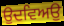
ਉਦਵਿਅਉ